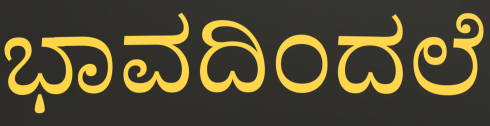
ಭಾವದಿಂದಲೆ